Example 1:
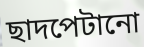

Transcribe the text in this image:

ছাদপেটানো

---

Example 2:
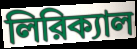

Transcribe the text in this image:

লিরিক্যাল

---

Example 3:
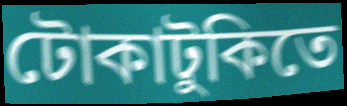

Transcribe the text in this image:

টোকাটুকিতে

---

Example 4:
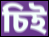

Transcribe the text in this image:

চিই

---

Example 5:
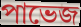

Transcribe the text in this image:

পাভেজ